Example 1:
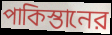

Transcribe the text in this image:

পাকিস্তানের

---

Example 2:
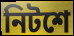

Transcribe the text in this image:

নিটশে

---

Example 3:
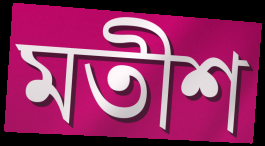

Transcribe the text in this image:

মতীশ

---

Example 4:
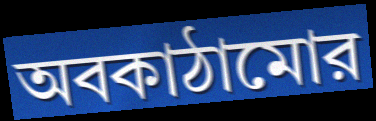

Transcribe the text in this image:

অবকাঠামোর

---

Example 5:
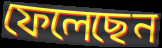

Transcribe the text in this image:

ফেলেছেন